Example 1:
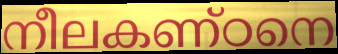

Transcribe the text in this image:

നീലകണ്ഠനെ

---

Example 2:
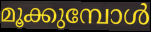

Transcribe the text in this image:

മൂക്കുമ്പോൾ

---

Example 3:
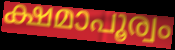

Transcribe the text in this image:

ക്ഷമാപൂര്വം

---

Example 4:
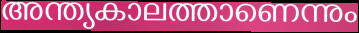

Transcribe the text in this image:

അന്ത്യകാലത്താണെന്നും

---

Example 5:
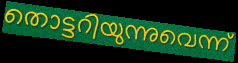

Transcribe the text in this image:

തൊട്ടറിയുന്നുവെന്ന്